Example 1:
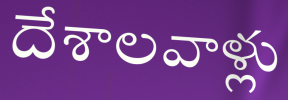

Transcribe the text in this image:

దేశాలవాళ్లు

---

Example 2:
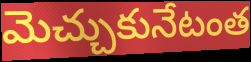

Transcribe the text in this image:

మెచ్చుకునేటంత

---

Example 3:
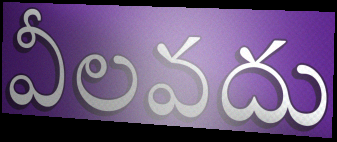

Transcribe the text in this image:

వీలవదు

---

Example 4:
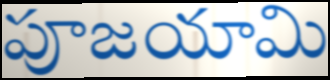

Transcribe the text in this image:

పూజయామి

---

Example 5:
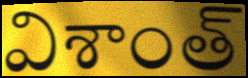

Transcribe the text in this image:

విశాంత్